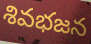
శివభజన